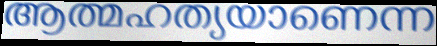
ആത്മഹത്യയാണെന്ന